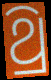
ଥ୍ରି